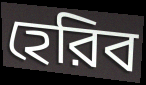
হেরিব